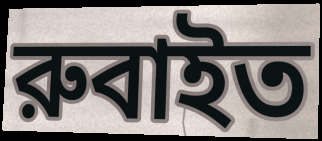
রুবাইত